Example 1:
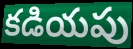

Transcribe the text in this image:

కడియపు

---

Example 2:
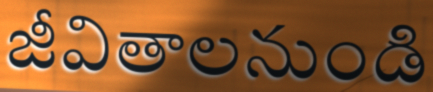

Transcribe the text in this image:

జీవితాలనుండి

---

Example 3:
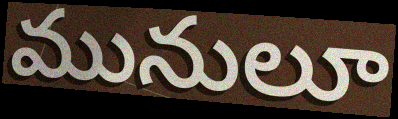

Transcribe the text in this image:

మునులూ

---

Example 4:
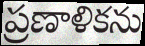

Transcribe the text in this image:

ప్రణాళికను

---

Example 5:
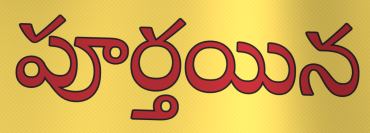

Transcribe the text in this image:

పూర్తయిన